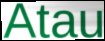
Atau